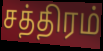
சத்திரம்